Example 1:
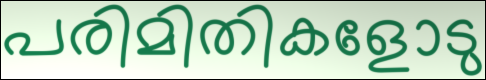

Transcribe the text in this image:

പരിമിതികളോടു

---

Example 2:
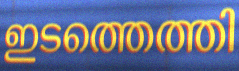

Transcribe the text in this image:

ഇടത്തെത്തി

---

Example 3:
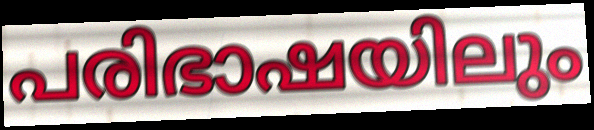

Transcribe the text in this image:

പരിഭാഷയിലും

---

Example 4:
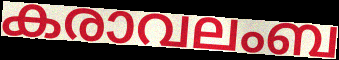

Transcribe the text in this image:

കരാവലംബ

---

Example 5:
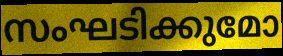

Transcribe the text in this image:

സംഘടിക്കുമോ